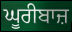
ਘੂਰੀਬਾਜ਼